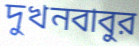
দুখনবাবুর